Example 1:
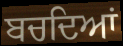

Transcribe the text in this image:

ਬਚਦਿਆਂ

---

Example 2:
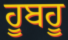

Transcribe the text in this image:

ਹੂਬਹੂ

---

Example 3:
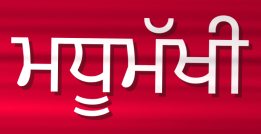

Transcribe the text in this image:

ਮਧੂਮੱਖੀ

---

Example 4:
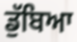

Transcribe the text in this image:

ਡੁੱਬਿਆ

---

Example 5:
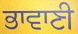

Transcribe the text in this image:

ਭਾਵਾਣੀ